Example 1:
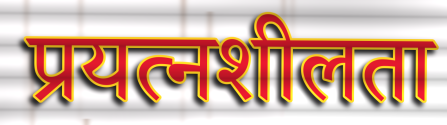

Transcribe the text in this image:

प्रयत्नशीलता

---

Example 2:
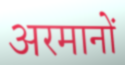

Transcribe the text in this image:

अरमानों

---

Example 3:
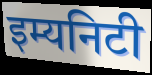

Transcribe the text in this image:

इम्यनिटी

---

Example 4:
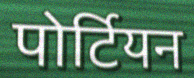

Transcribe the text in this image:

पोर्टियन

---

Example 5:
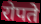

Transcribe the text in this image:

रोपते